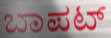
ಬಾಪಟ್